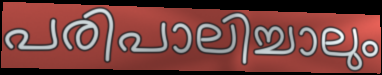
പരിപാലിച്ചാലും